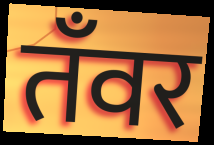
तँवर